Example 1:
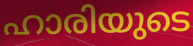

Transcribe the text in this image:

ഹാരിയുടെ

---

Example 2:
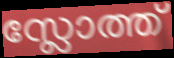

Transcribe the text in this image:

സ്ലോത്ത്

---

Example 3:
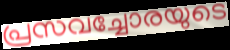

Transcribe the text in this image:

പ്രസവച്ചോരയുടെ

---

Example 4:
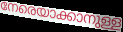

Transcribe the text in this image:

നേരെയാക്കാനുള്ള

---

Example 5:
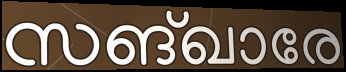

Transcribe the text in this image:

സങ്ഖാരേ